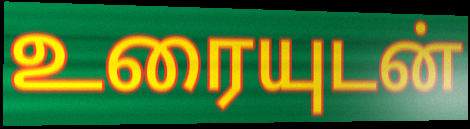
உரையுடன்